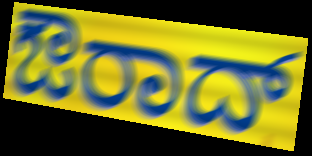
ಔರಾದ್